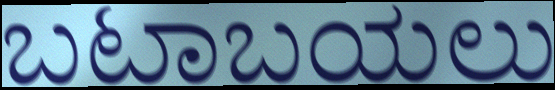
ಬಟಾಬಯಲು